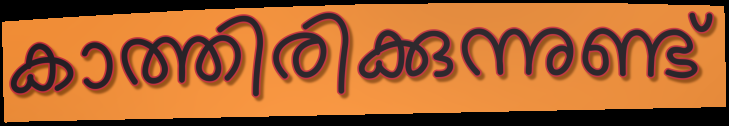
കാത്തിരിക്കുന്നുണ്ട്